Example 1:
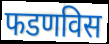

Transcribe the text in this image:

फडणविस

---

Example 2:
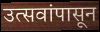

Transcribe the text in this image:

उत्सवांपासून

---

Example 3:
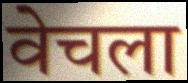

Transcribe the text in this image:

वेचला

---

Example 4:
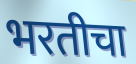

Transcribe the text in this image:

भरतीचा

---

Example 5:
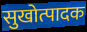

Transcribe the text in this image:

सुखोत्पादक